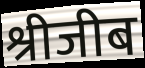
श्रीजीब